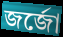
জর্জো